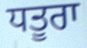
ਧਤੂਰਾ